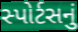
સ્પોર્ટસનું